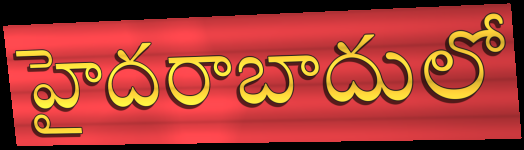
హైదరాబాదులో